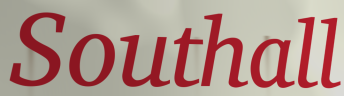
Southall